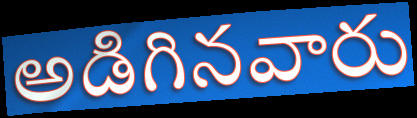
అడిగినవారు